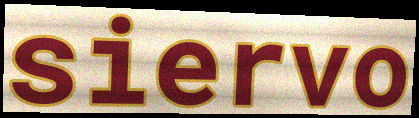
siervo